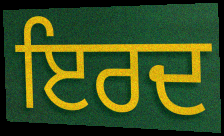
ਇਰਦ